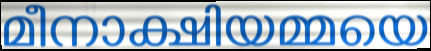
മീനാക്ഷിയമ്മയെ